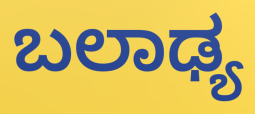
ಬಲಾಢ್ಯ